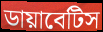
ডায়াবেটিস